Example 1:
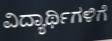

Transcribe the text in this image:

ವಿದ್ಯಾರ್ಥಿಗಳಿಗೆ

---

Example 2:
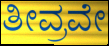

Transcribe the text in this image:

ತೀವ್ರವೇ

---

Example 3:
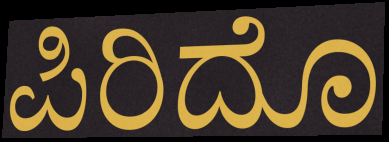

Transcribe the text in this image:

ಪಿರಿದೊ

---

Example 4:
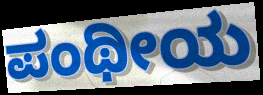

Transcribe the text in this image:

ಪಂಥೀಯ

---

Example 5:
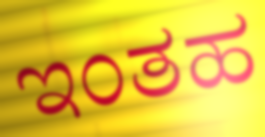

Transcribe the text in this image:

ಇಂತಹ